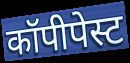
कॉपीपेस्ट